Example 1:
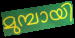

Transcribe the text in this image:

മുമ്പായി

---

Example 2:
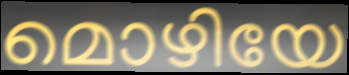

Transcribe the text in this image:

മൊഴിയേ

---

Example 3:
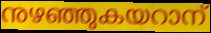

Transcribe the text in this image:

നുഴഞ്ഞുകയറാന്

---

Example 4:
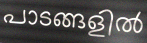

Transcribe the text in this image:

പാടങ്ങളിൽ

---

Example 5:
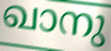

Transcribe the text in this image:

ഖാനു